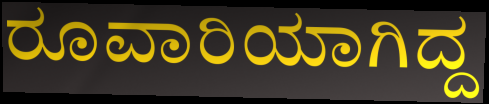
ರೂವಾರಿಯಾಗಿದ್ದ